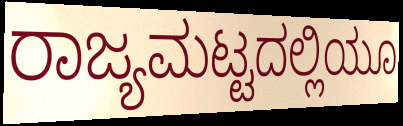
ರಾಜ್ಯಮಟ್ಟದಲ್ಲಿಯೂ